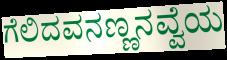
ಗೆಲಿದವನಣ್ಣನವ್ವೆಯ